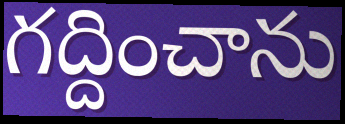
గద్దించాను